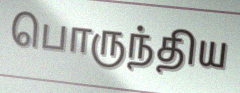
பொருந்திய